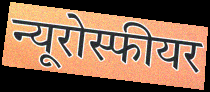
न्यूरोस्फीयर